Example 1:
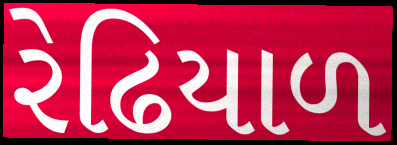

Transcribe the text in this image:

રેઢિયાળ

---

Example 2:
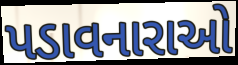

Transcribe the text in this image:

પડાવનારાઓ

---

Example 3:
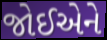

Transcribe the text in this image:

જોઈએને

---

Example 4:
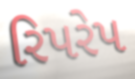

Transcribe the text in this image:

રિપરેપ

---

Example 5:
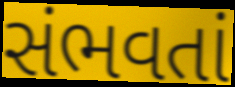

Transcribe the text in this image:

સંભવતાં